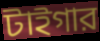
টাইগার